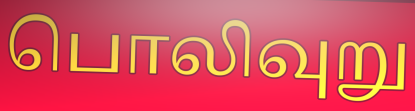
பொலிவுறு